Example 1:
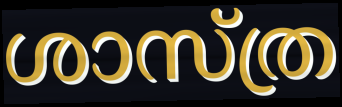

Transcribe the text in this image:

ശാസ്ത്ര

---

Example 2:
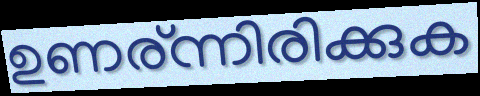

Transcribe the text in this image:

ഉണര്ന്നിരിക്കുക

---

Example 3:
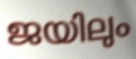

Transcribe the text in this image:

ജയിലും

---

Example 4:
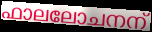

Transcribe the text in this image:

ഫാലലോചനന്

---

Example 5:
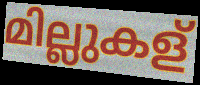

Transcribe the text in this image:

മില്ലുകള്